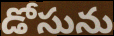
డోసును